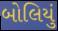
બોલિયું